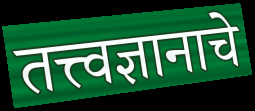
तत्त्वज्ञानाचे